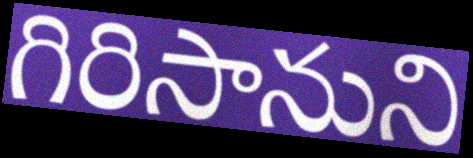
గిరిసానుని